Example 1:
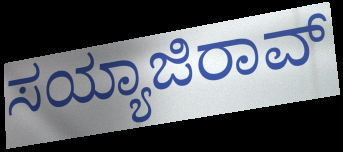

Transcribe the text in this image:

ಸಯ್ಯಾಜಿರಾವ್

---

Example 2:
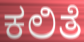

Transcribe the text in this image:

ಕಲಿತೆ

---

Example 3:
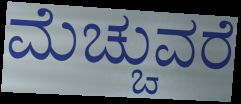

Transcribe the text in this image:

ಮೆಚ್ಚುವರೆ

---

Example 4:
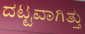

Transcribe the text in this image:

ದಟ್ಟವಾಗಿತ್ತು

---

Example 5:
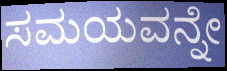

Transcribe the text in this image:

ಸಮಯವನ್ನೇ